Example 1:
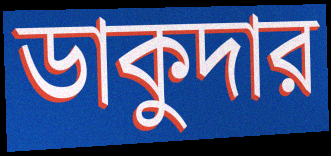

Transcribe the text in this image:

ডাকুদার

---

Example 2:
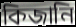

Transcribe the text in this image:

কিজানি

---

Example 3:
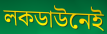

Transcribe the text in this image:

লকডাউনেই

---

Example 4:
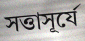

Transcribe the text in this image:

সত্তাসূর্যে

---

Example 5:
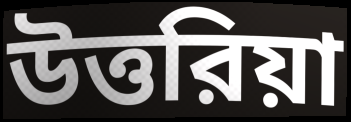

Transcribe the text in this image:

উত্তরিয়া